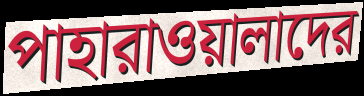
পাহারাওয়ালাদের